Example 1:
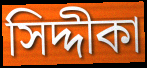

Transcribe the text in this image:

সিদ্দীকা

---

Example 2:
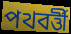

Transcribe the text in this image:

পথবর্ত্তী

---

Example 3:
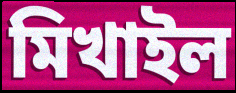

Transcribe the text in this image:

মিখাইল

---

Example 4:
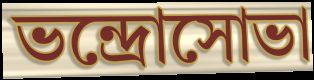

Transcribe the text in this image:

ভন্দ্রোসোভা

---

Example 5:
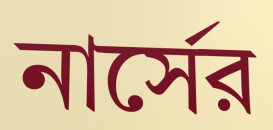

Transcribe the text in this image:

নার্সের